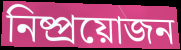
নিষ্প্ৰয়োজন